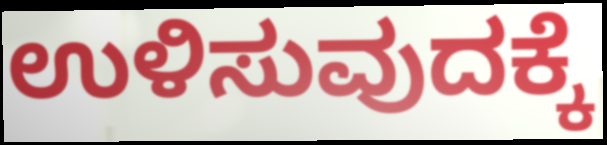
ಉಳಿಸುವುದಕ್ಕೆ